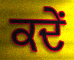
ਕਦੇਂ